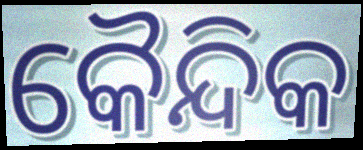
କୈନ୍ଦିକ